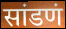
सांडणं